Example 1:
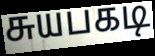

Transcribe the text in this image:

சுயபகடி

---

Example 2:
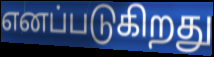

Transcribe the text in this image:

எனப்படுகிறது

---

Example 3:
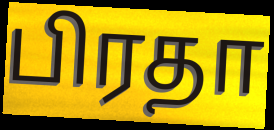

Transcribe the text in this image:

பிரதா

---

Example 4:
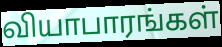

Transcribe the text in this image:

வியாபாரங்கள்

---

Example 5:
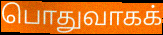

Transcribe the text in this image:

பொதுவாகக்